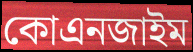
কোএনজাইম